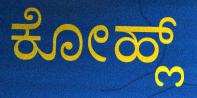
ಕೋಹ್ಲ್